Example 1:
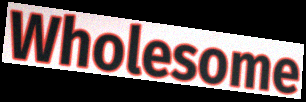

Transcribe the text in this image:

Wholesome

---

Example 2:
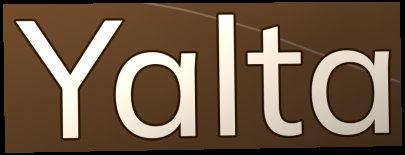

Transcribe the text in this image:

Yalta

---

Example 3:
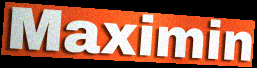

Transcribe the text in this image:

Maximin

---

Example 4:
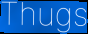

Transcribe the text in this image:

Thugs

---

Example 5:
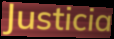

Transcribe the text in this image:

Justicia